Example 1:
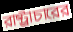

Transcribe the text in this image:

রাষ্ট্রাচারের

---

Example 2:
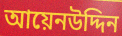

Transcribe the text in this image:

আয়েনউদ্দিন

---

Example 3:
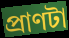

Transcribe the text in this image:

প্রাণটা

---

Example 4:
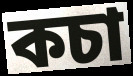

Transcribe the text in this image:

কচা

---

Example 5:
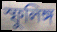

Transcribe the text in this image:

স্ফুলিঙ্গ